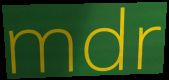
mdr